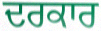
ਦਰਕਾਰ